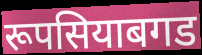
रूपसियाबगड